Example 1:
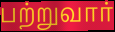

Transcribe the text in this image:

பற்றுவார்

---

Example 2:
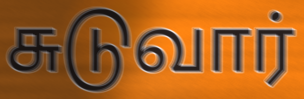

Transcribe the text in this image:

சுடுவார்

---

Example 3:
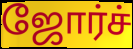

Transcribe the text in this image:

ஜோர்ச்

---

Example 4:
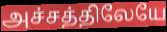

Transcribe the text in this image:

அச்சத்திலேயே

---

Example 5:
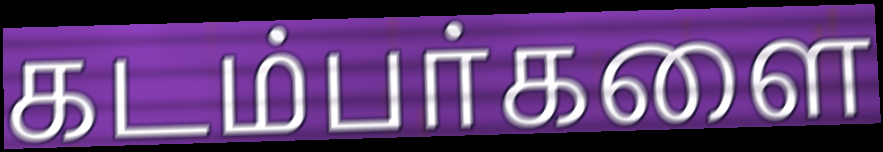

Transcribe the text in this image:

கடம்பர்களை